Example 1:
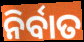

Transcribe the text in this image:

ନିର୍ବାତ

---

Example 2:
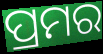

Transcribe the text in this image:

ପ୍ରମର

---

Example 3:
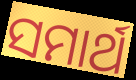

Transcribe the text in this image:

ସମାର୍ଥ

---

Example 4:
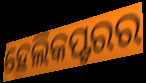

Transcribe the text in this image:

ହେଲିକପ୍ଟରର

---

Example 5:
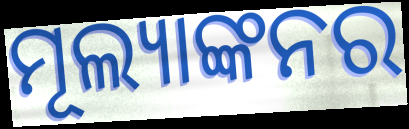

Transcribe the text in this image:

ମୂଲ୍ୟାଙ୍କନର